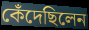
কেঁদেছিলেন